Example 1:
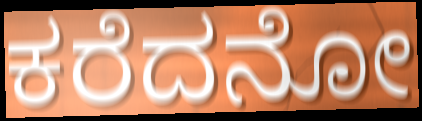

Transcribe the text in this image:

ಕರೆದನೋ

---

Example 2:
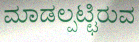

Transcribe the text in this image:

ಮಾಡಲ್ಪಟ್ಟಿರುವ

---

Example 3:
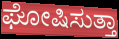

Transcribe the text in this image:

ಘೋಷಿಸುತ್ತಾ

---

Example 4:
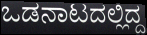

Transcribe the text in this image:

ಒಡನಾಟದಲ್ಲಿದ್ದ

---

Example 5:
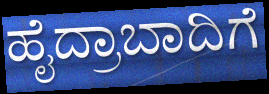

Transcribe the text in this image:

ಹೈದ್ರಾಬಾದಿಗೆ